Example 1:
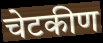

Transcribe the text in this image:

चेटकीण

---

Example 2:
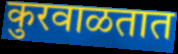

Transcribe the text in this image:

कुरवाळतात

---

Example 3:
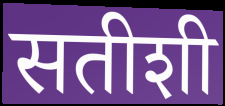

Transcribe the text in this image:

सतीशी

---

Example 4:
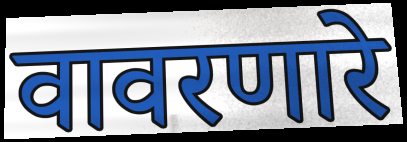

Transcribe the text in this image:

वावरणारे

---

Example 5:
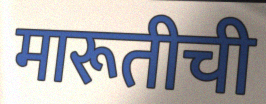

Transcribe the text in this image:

मारूतीची